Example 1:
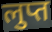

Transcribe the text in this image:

लुप्त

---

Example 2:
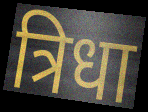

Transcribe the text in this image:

त्रिधा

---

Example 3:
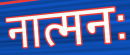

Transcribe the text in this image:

नात्मनः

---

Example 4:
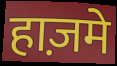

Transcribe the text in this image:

हाज़मे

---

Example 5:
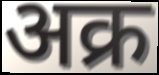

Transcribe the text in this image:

अक्र